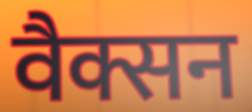
वैक्सन